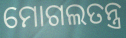
ମୋଗଲତନ୍ତ୍ର